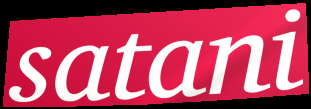
satani